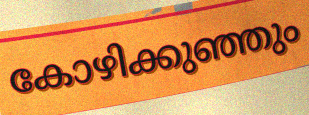
കോഴിക്കുഞ്ഞും